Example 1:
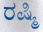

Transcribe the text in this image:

ರಷ್ಮಿ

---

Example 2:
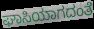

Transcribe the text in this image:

ಘಾಸಿಯಾಗದಂತೆ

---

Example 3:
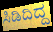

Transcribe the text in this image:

ಸಿಡಿದಿದ್ದ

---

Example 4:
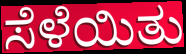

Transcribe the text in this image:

ಸೆಳೆಯಿತು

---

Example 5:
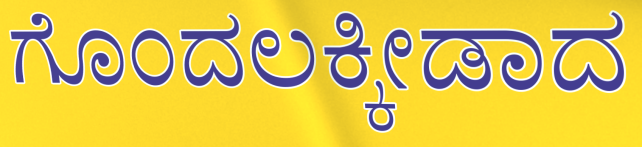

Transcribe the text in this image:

ಗೊಂದಲಕ್ಕೀಡಾದ